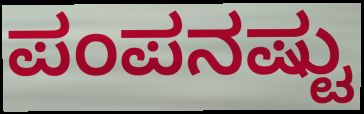
ಪಂಪನಷ್ಟು